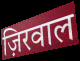
ज़िरवाल